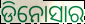
ଡିନୋସାର